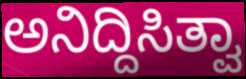
ಅನಿದ್ದಿಸಿತ್ವಾ